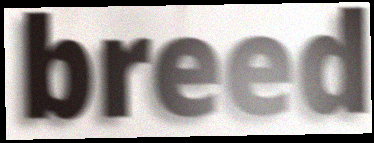
breed